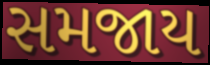
સમજાય